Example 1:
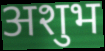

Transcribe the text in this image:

अशुभ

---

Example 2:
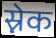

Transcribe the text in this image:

स्नेक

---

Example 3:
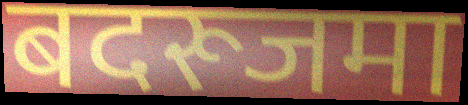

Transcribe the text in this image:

बदरूजमा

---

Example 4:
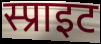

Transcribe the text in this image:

स्प्राइट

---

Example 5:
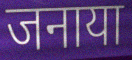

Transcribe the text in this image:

जनाया